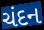
ચંદન